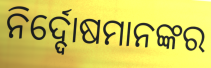
ନିର୍ଦ୍ଦୋଷମାନଙ୍କର